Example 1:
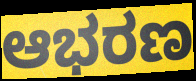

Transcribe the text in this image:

ಆಭರಣ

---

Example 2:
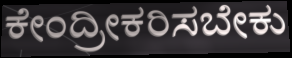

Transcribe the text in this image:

ಕೇಂದ್ರೀಕರಿಸಬೇಕು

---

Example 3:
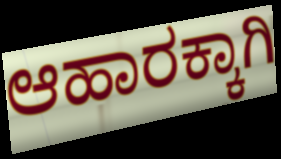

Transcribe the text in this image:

ಆಹಾರಕ್ಕಾಗಿ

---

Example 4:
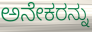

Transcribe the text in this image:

ಅನೇಕರನ್ನು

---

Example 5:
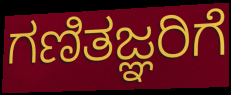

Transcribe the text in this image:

ಗಣಿತಜ್ಞರಿಗೆ